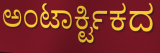
ಅಂಟಾರ್ಕ್ಟಿಕದ